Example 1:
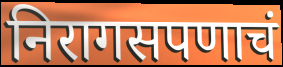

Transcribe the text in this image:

निरागसपणाचं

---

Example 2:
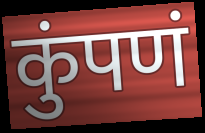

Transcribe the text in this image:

कुंपणं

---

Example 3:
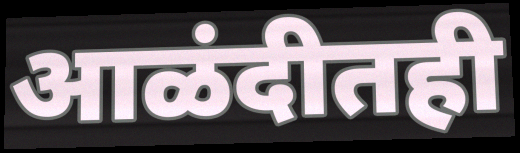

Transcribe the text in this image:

आळंदीतही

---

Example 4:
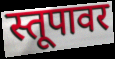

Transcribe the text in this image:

स्तूपावर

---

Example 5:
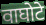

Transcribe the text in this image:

वाघोटे